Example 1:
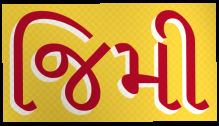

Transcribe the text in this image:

જિમી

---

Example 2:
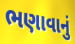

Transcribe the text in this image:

ભણાવાનું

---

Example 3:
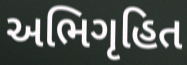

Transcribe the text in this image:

અભિગૃહિત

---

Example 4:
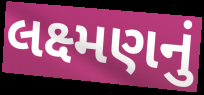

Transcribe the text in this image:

લક્ષ્મણનું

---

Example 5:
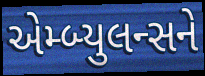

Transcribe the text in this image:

એમ્બ્યુલન્સને